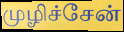
முழிச்சேன்